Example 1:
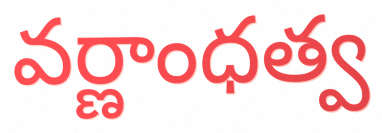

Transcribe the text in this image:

వర్ణాంధత్వ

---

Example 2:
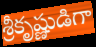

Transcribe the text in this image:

శ్రీకృష్ణుడిగా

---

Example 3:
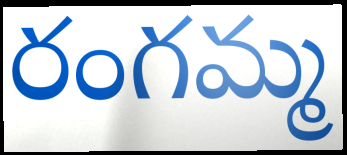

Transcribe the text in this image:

రంగమ్మ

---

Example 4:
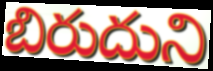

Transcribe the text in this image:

బిరుదుని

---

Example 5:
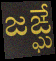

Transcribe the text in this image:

జఙ్ఘే